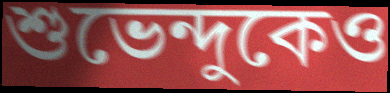
শুভেন্দুকেও